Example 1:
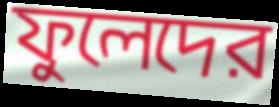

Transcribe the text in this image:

ফুলেদের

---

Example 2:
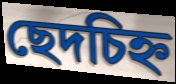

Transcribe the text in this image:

ছেদচিহ্ন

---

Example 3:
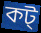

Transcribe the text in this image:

কট্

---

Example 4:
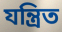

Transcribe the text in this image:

যন্ত্রিত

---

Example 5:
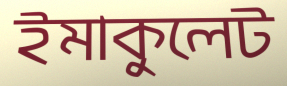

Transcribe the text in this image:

ইমাকুলেট